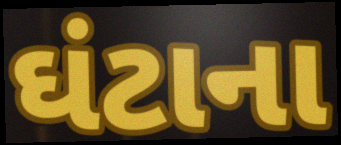
ઘંટાના